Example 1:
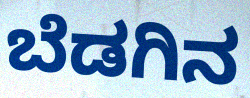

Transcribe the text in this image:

ಬೆಡಗಿನ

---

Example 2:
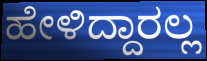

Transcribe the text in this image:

ಹೇಳಿದ್ದಾರಲ್ಲ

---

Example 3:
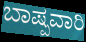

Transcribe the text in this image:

ಬಾಷ್ಪವಾರಿ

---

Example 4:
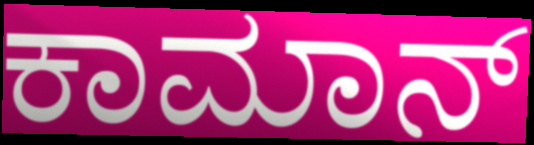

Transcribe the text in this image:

ಕಾಮಾನ್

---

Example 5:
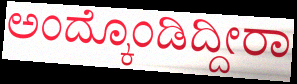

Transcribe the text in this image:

ಅಂದ್ಕೊಂಡಿದ್ದೀರಾ